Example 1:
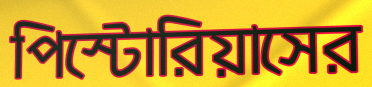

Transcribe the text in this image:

পিস্টোরিয়াসের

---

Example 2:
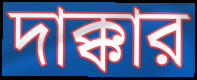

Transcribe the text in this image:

দাক্কার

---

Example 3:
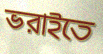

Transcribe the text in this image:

ভরাইতে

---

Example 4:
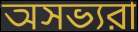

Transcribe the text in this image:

অসভ্যরা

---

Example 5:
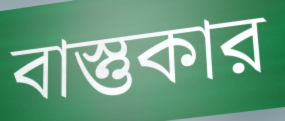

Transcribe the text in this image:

বাস্তুকার